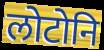
लोटोनि